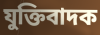
যুক্তিবাদক